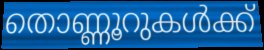
തൊണ്ണൂറുകൾക്ക്